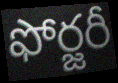
ఫోర్జరీ